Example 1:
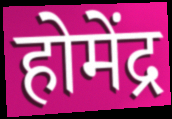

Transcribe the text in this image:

होमेंद्र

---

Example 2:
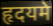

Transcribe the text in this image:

हृदयमे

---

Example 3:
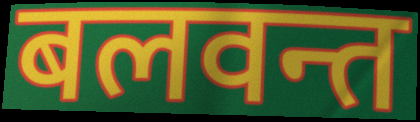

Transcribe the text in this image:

बलवन्त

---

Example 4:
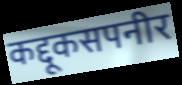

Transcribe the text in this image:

कद्दूकसपनीर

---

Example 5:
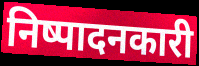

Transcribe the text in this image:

निष्पादनकारी